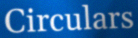
Circulars